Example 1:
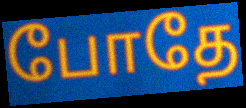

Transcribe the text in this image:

போதே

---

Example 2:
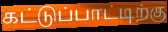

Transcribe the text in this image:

கட்டுப்பாட்டிற்கு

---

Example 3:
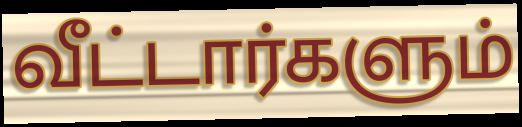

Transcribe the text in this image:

வீட்டார்களும்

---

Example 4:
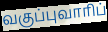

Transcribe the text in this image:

வகுப்புவாரிப்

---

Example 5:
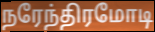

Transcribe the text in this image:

நரேந்திரமோடி